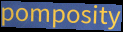
pomposity